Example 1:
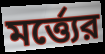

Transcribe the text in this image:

মর্ত্ত্যের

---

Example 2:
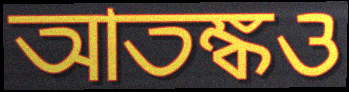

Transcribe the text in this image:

আতঙ্কও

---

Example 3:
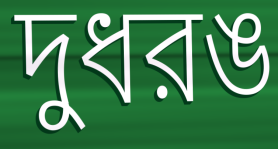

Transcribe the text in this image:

দুধরঙ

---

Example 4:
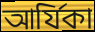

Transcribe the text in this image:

আর্যিকা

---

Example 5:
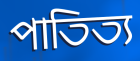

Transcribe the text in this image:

পাতিত্য